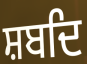
ਸ਼ਬਦਿ